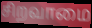
சிறவாமை